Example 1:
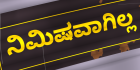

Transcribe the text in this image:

ನಿಮಿಷವಾಗಿಲ್ಲ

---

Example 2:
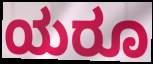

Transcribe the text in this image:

ಯರೂ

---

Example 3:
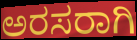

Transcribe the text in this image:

ಅರಸರಾಗಿ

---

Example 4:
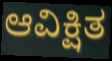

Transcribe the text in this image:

ಆವಿಕ್ಷಿತ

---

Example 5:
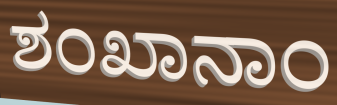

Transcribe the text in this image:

ಶಂಖಾನಾಂ